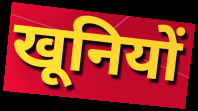
खूनियों